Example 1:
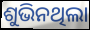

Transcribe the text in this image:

ଶୁଭିନଥିଲା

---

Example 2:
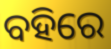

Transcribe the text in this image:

ବହିରେ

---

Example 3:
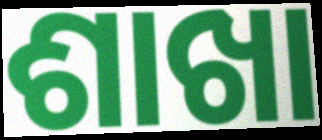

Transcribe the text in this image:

ଶାଖା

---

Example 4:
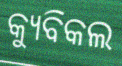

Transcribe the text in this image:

କ୍ୟୁବିକଲ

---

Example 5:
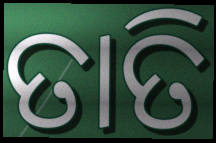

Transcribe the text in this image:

ତାତି